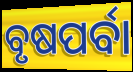
ବୃଷପର୍ବା